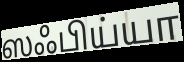
ஸஃபிய்யா